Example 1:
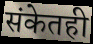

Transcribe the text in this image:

संकेतही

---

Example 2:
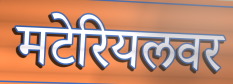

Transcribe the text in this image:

मटेरियलवर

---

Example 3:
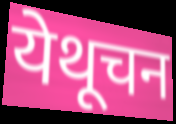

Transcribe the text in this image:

येथूचन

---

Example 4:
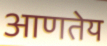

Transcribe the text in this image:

आणतेय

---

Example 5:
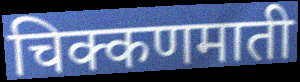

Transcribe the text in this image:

चिक्कणमाती